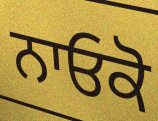
ਨਾਓਕੋ